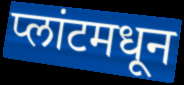
प्लांटमधून